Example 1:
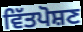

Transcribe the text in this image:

ਵਿੱਤਪੋਸ਼ਣ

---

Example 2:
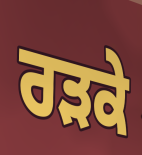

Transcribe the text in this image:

ਰੜਕੇ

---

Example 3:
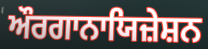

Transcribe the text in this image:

ਔਰਗਾਨਾਯਿਜ਼ੇਸ਼ਨ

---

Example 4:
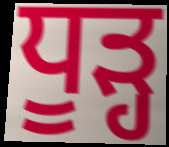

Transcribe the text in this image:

ਧੂੜ੍ਹ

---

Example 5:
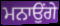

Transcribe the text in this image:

ਮਨਾਉਂਗੇ